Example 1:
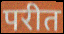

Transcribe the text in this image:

परीत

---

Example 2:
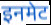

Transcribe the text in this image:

इनमेट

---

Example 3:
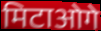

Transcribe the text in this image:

मिटाओगे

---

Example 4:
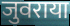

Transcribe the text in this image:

जुवराया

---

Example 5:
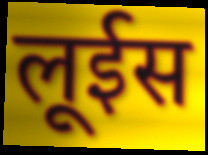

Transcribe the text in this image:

लूईस